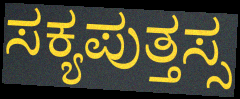
ಸಕ್ಯಪುತ್ತಸ್ಸ